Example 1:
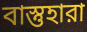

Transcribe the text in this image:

বাস্তুহারা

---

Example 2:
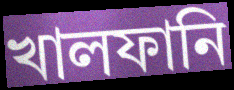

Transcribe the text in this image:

খালফানি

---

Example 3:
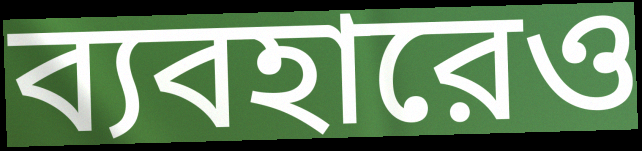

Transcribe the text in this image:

ব্যবহারেও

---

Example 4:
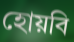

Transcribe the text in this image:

হোয়বি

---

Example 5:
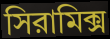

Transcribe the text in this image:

সিরামিক্স